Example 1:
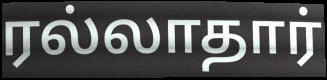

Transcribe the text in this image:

ரல்லாதார்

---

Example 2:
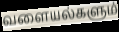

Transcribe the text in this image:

வளையல்களும்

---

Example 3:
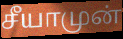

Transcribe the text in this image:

சீயாமுன்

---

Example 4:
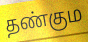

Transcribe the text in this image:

தண்கும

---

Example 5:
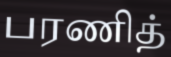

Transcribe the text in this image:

பரணித்